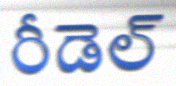
రీడెల్